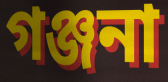
গঞ্জনা